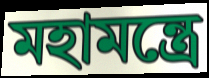
মহামন্ত্রে